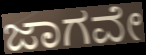
ಜಾಗವೇ